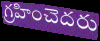
గ్రహించెదరు